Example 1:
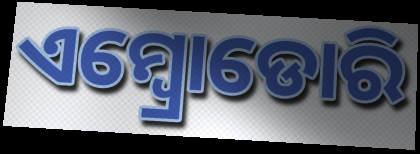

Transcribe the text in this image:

ଏମ୍ବ୍ରୋଡୋରି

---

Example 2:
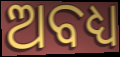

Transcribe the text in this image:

ଅବଧ୍ୟ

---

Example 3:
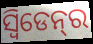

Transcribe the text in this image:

ସ୍ୱିଡେନ୍‍ର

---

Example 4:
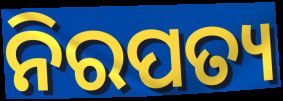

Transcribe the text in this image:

ନିରପତ୍ୟ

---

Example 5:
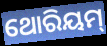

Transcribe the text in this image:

ଥୋରିୟମ୍